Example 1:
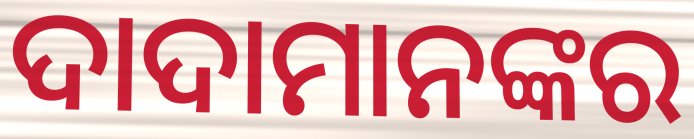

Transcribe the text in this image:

ଦାଦାମାନଙ୍କର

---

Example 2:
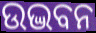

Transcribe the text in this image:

ଉଦ୍ଭବନ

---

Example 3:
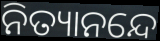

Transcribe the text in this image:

ନିତ୍ୟାନନ୍ଦେ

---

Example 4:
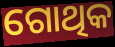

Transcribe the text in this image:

ଗୋଥିକ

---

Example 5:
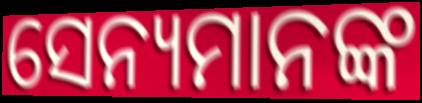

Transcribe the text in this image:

ସେନ୍ୟମାନଙ୍କ